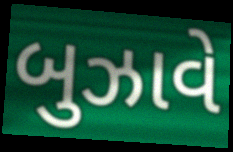
બુઝાવે